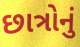
છાત્રોનું